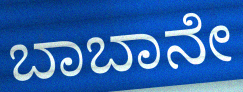
ಬಾಬಾನೇ